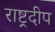
राष्ट्रदीप